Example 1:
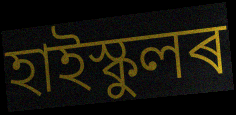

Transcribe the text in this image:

হাইস্কুলৰ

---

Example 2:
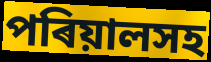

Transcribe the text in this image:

পৰিয়ালসহ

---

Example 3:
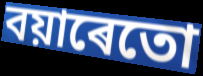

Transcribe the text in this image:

বয়াৰেতো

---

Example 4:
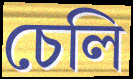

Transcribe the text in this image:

চেলি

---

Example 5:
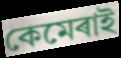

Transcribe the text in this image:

কেমেৰাই